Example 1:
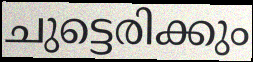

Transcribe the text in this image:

ചുട്ടെരിക്കും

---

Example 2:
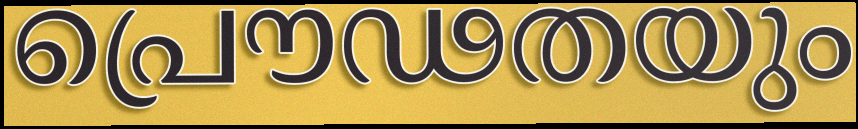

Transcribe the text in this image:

പ്രൌഢതയും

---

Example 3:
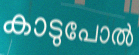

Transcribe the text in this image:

കാടുപോൽ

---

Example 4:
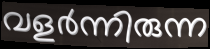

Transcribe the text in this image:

വളർന്നിരുന്ന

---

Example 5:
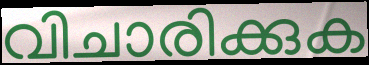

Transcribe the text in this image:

വിചാരിക്കുക